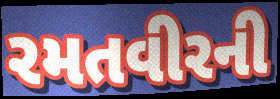
રમતવીરની